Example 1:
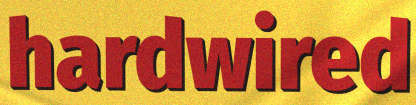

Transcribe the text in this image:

hardwired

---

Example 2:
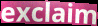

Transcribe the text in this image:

exclaim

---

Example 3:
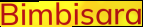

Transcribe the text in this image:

Bimbisara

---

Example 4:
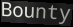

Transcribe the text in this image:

Bounty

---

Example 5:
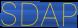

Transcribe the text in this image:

SDAP